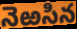
నెఱసిన